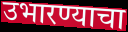
उभारण्याचा